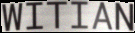
WITIAN